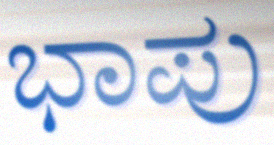
ಭಾಪು